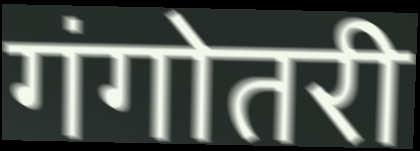
गंगोतरी